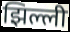
झिल्ली